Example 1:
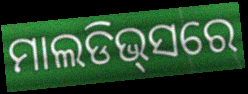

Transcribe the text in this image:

ମାଲଡିଭ୍‌ସରେ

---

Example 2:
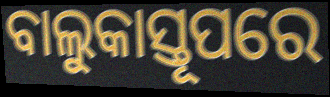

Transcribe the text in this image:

ବାଲୁକାସ୍ତୂପରେ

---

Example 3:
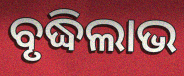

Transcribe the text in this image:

ବୃଦ୍ଧିଲାଭ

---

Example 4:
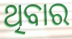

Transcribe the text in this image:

ଥିବାର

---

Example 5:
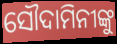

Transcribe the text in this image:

ସୌଦାମିନୀଙ୍କୁ